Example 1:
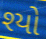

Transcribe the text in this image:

શ્યો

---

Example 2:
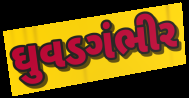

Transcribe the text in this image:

ઘુવડગંભીર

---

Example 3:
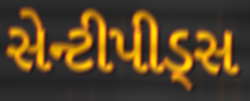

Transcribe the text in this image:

સેન્ટીપીડ્સ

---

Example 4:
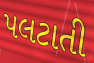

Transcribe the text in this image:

પલટાતી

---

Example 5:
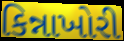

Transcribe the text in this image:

કિન્નાખોરી